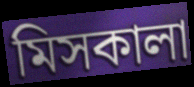
মিসকালা